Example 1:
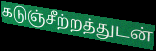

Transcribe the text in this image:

கடுஞ்சீற்றத்துடன்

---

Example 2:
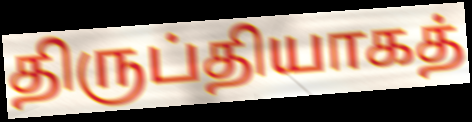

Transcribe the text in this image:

திருப்தியாகத்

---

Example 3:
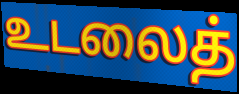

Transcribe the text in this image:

உடலைத்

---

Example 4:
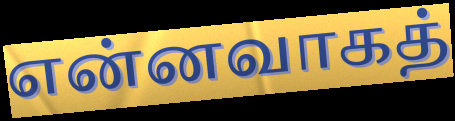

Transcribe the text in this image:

என்னவாகத்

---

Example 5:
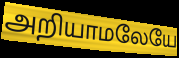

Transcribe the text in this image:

அறியாமலேயே